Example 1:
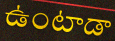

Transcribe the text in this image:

ఉంటాడా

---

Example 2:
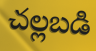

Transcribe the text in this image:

చల్లబడి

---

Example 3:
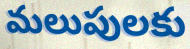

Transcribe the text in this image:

మలుపులకు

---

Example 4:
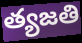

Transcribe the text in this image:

త్యజతి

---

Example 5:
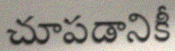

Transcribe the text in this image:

చూపడానికీ